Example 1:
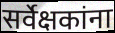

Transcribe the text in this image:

सर्वेक्षकांना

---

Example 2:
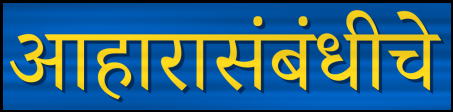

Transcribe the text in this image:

आहारासंबंधीचे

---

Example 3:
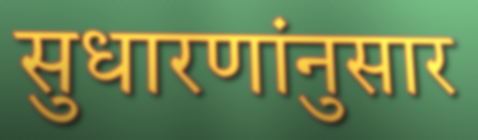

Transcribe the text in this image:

सुधारणांनुसार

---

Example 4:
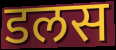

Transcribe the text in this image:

डलस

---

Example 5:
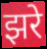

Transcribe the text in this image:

झरे